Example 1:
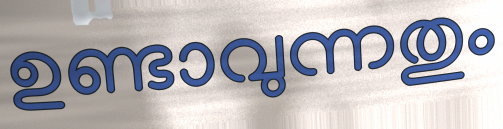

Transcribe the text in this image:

ഉണ്ടാവുന്നതും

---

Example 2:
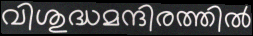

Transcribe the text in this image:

വിശുദ്ധമന്ദിരത്തിൽ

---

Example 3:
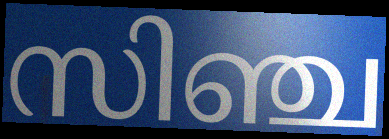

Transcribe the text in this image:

സിഞ്ച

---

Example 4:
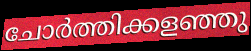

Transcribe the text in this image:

ചോർത്തിക്കളഞ്ഞു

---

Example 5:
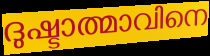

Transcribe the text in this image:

ദുഷ്ടാത്മാവിനെ